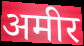
अमीर